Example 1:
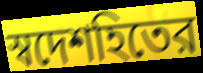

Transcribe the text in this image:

স্বদেশহিতের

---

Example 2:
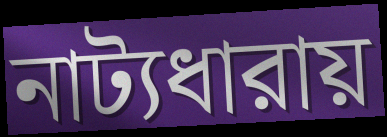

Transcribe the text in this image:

নাট্যধারায়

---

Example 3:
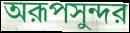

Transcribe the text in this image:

অরূপসুন্দর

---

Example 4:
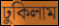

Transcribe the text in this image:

ঢুকিলাম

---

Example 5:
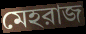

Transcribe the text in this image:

মেহরাজ